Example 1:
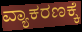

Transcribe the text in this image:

ವ್ಯಾಕರಣಕ್ಕೆ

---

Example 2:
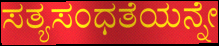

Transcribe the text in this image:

ಸತ್ಯಸಂಧತೆಯನ್ನೇ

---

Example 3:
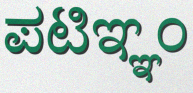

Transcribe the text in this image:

ಪಟಿಞ್ಞಂ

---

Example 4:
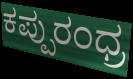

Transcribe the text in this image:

ಕಪ್ಪುರಂಧ್ರ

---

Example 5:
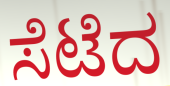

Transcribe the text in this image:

ಸೆಟೆದ